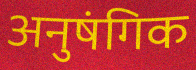
अनुषंगिक